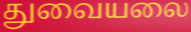
துவையலை